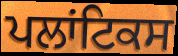
ਪਲਾਂਟਿਕਸ